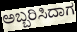
ಅಬ್ಬರಿಸಿದಾಗ